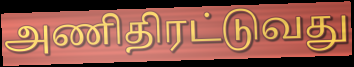
அணிதிரட்டுவது